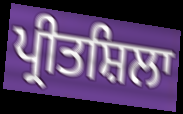
ਪ੍ਰੀਤਸ਼ਿਲਾ